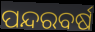
ପନ୍ଦରବର୍ଷ